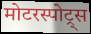
मोटरस्पोट्र्स